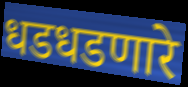
धडधडणारे